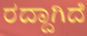
ರದ್ದಾಗಿದೆ